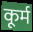
कूर्म